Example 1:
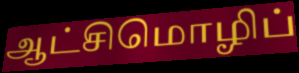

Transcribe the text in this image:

ஆட்சிமொழிப்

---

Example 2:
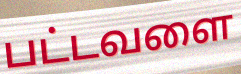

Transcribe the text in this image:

பட்டவளை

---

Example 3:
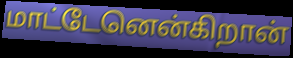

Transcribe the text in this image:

மாட்டேனென்கிறான்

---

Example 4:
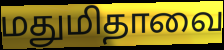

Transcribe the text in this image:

மதுமிதாவை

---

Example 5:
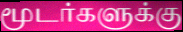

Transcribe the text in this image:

மூடர்களுக்கு